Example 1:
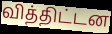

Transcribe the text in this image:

வித்திட்டன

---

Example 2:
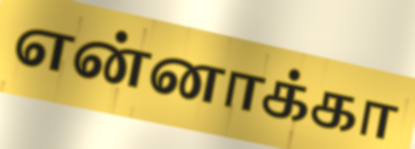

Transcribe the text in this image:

என்னாக்கா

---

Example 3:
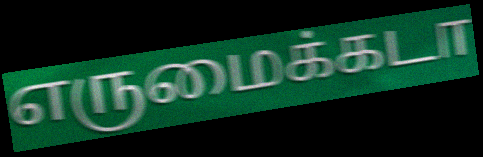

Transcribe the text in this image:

எருமைக்கடா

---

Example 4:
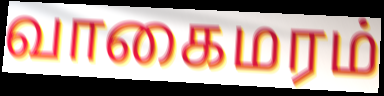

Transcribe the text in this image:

வாகைமரம்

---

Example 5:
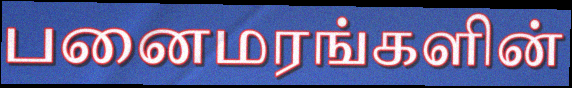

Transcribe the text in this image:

பனைமரங்களின்